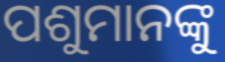
ପଶୁମାନଙ୍କୁ